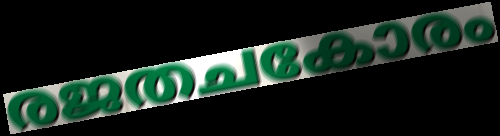
രജതചകോരം